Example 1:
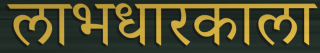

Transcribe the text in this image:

लाभधारकाला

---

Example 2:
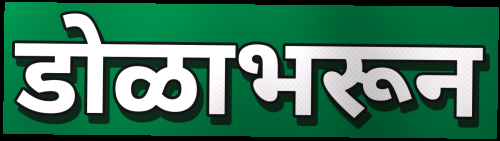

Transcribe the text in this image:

डोळाभरून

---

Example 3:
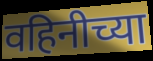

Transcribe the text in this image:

वहिनीच्या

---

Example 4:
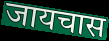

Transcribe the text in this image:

जायचास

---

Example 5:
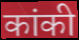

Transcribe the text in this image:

कांकी